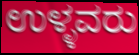
ಉಳ್ಳವರು